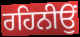
ਰਹਿਨੀਉਂ